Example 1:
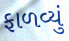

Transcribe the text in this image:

ફાળવ્યું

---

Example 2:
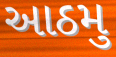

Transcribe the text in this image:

આઠમુ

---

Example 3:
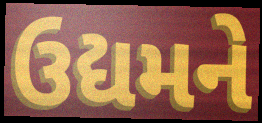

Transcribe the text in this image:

ઉદ્યમને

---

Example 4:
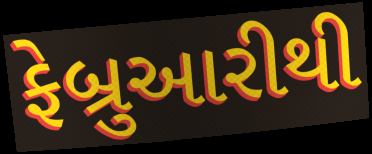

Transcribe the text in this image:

ફેબ્રુઆરીથી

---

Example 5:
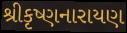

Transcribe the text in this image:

શ્રીકૃષ્ણનારાયણ